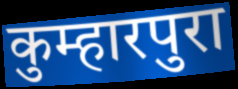
कुम्हारपुरा